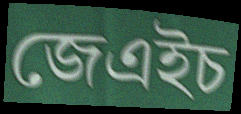
জেএইচ